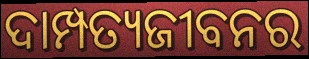
ଦାମ୍ପତ୍ୟଜୀବନର